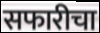
सफारीचा